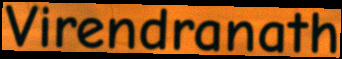
Virendranath